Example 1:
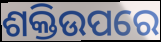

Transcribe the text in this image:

ଶକ୍ତିଉପରେ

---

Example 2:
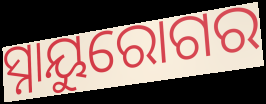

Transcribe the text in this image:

ସ୍ନାୟୁରୋଗର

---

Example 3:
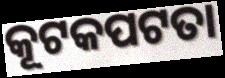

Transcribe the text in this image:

କୂଟକପଟତା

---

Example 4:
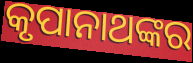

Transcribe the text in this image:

କୃପାନାଥଙ୍କର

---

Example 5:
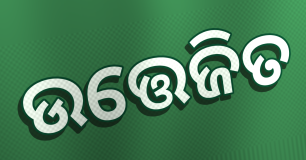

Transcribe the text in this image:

ଉତ୍ତେଜିତ